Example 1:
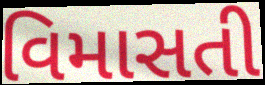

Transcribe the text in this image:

વિમાસતી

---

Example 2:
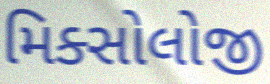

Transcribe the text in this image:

મિક્સોલોજી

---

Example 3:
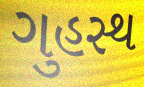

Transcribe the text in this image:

ગુહસ્થ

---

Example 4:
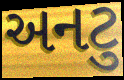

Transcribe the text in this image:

અનટુ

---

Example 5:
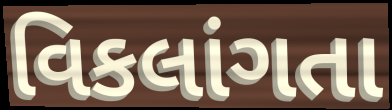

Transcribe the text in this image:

વિકલાંગતા